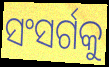
ସଂସର୍ଗକୁ